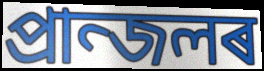
প্ৰান্জলৰ